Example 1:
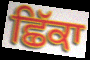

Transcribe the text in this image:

ਛਿੱਕਾ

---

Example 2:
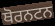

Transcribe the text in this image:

ਥੋਰਨਟਨ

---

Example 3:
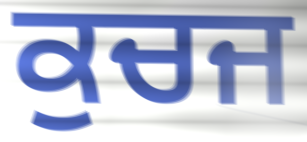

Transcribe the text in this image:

ਕੁਚਜ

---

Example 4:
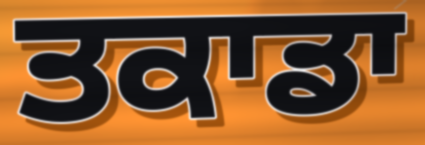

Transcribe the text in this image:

ਤਕਾਡਾ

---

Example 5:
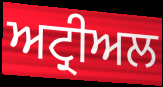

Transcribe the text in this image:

ਅਟ੍ਰੀਅਲ